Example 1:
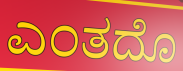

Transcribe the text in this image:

ಎಂತದೊ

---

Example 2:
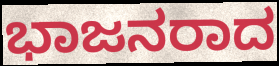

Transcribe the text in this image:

ಭಾಜನರಾದ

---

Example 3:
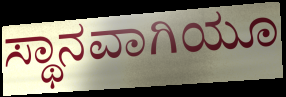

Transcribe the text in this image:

ಸ್ಥಾನವಾಗಿಯೂ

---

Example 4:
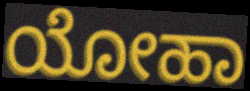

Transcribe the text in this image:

ಯೋಹಾ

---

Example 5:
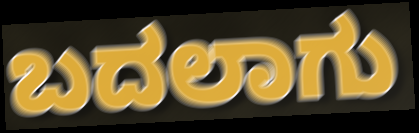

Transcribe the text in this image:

ಬದಲಾಗು